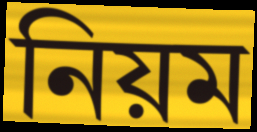
নিয়ম